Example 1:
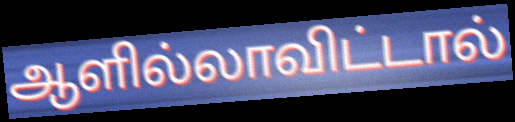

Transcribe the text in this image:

ஆளில்லாவிட்டால்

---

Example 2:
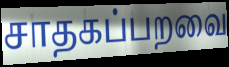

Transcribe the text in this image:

சாதகப்பறவை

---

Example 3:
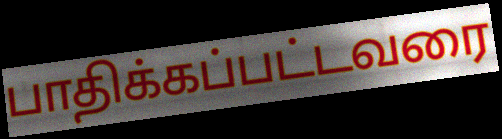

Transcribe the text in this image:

பாதிக்கப்பட்டவரை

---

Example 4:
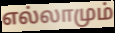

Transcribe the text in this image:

எல்லாமும்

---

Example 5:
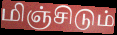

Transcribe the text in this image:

மிஞ்சிடும்